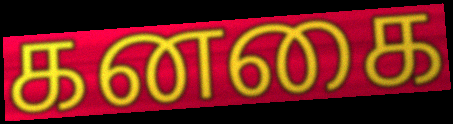
கனகை